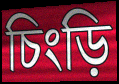
চিংড়ি